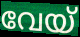
വേയ്